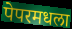
पेपरमधला